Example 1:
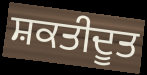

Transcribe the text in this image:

ਸ਼ਕਤੀਦੂਤ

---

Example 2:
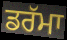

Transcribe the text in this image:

ਡਰੱਮਾ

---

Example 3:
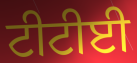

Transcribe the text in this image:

ਟੀਟੀਈ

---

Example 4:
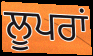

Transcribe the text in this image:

ਲੂਪਰਾਂ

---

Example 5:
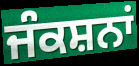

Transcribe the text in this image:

ਜੰਕਸ਼ਨਾਂ